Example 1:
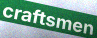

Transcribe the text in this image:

craftsmen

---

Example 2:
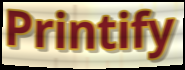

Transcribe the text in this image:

Printify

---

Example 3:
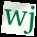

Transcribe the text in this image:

wj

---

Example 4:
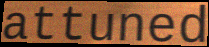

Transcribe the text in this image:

attuned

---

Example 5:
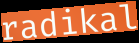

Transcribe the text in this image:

radikal